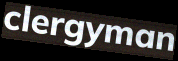
clergyman